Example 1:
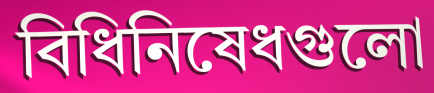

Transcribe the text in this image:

বিধিনিষেধগুলো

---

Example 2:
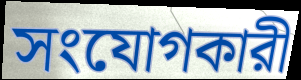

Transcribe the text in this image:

সংযোগকারী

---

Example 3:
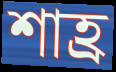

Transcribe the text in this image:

শাহ্র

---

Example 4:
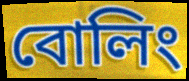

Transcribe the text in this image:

বোলিং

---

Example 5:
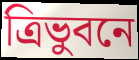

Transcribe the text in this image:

ত্রিভুবনে